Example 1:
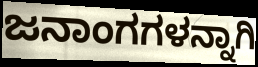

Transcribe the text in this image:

ಜನಾಂಗಗಳನ್ನಾಗಿ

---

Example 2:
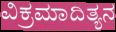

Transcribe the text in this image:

ವಿಕ್ರಮಾದಿತ್ಯನ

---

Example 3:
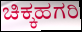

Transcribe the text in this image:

ಚಿಕ್ಕಹಗರಿ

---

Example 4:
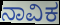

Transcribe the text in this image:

ನಾವಿಕ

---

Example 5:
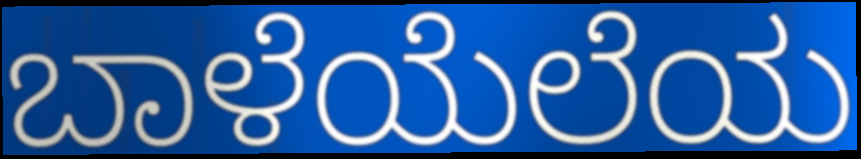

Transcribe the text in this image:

ಬಾಳೆಯೆಲೆಯ